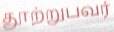
தூற்றுபவர்